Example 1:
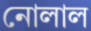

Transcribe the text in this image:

নোলাল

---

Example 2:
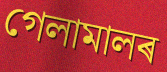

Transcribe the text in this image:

গেলামালৰ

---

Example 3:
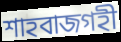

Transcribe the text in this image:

শাহবাজগহী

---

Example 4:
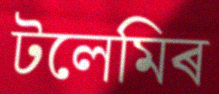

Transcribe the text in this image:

টলেমিৰ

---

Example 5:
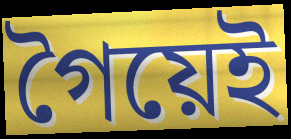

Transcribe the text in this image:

গৈয়েই